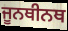
ਜੂਨਥੀਨਥ